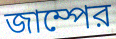
জাম্পের